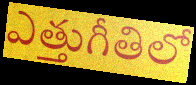
ఎత్తుగీతిలో